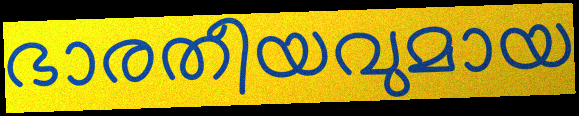
ഭാരതീയവുമായ